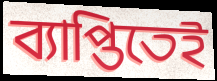
ব্যাপ্তিতেই